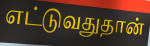
எட்டுவதுதான்